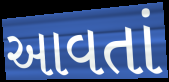
આવતાં